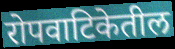
रोपवाटिकेतील